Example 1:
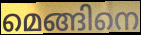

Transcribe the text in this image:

മെങ്ങിനെ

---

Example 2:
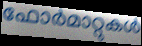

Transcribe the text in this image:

ഫോർമാറ്റുകൾ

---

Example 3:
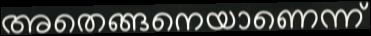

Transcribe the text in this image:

അതെങ്ങനെയാണെന്ന്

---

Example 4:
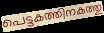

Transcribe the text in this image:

പെട്ടകത്തിനകത്തു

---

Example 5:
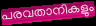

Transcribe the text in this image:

പരവതാനികളും